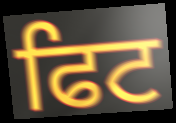
ਫਿਟ